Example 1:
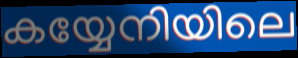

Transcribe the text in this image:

കയ്യേനിയിലെ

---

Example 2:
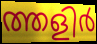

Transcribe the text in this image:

ത്തളിർ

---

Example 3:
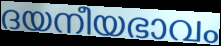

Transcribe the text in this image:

ദയനീയഭാവം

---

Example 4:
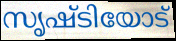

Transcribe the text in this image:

സൃഷ്ടിയോട്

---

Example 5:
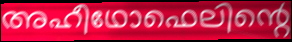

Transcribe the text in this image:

അഹീഥോഫെലിന്റെ